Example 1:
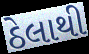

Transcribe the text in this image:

ઠેલાથી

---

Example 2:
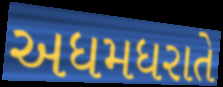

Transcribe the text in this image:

અધમધરાતે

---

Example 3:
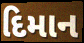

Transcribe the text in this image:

દિમાન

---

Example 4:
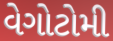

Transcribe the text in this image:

વેગોટોમી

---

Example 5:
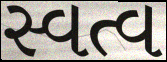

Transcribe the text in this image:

સ્વત્વ